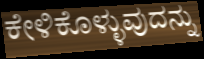
ಕೇಳಿಕೊಳ್ಳುವುದನ್ನು